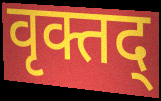
वृक्तद्